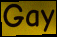
Gay